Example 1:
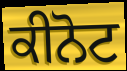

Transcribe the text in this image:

ਕੀਨੋਟ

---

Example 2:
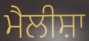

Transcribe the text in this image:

ਮੈਲੀਸ਼ਾ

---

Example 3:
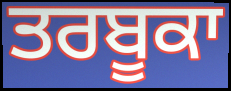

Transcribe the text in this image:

ਤਰਬੂਕਾ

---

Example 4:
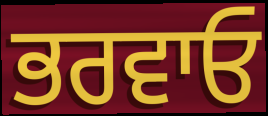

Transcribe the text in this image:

ਭਰਵਾਓ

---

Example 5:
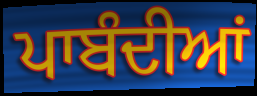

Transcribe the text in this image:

ਪਾਬੰਦੀਆਂ